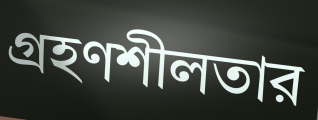
গ্রহণশীলতার